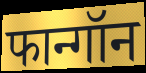
फान्गॉन